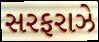
સરફરાઝે